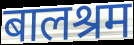
बालश्रम